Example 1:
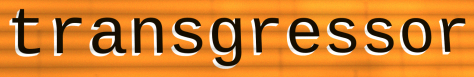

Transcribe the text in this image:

transgressor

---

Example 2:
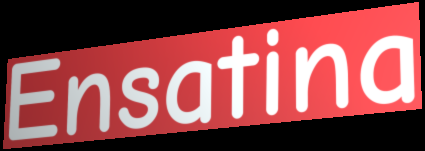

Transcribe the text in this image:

Ensatina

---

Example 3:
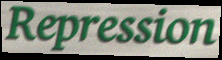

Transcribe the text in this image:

Repression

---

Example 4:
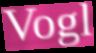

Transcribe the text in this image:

Vogl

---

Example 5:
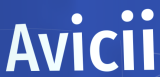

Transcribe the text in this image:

Avicii